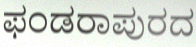
ಫಂಡರಾಪುರದ